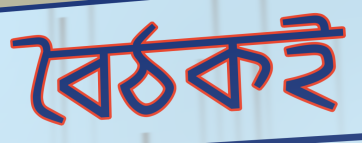
বৈঠকই